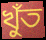
খুঁত